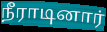
நீராடினார்